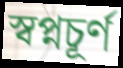
স্বপ্নচূর্ণ